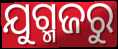
ଯୁଗ୍ମଜରୁ